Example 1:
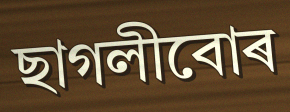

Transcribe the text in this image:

ছাগলীবোৰ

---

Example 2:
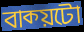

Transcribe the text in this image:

বাক্য়টো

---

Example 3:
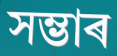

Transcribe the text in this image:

সম্ভাৰ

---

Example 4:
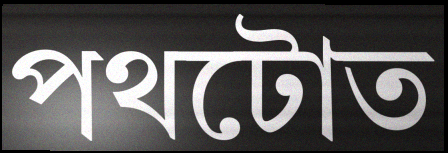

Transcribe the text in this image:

পথটোত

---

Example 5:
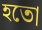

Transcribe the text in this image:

হতো